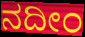
ನದೀಂ